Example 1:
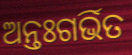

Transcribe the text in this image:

ଅନ୍ତଃଗର୍ଭିତ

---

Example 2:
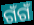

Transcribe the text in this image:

ଗଁଗଁ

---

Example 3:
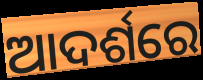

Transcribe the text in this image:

ଆଦର୍ଶରେ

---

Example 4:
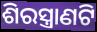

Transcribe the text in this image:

ଶିରସ୍ତ୍ରାଣଟି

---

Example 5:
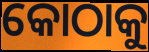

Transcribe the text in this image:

କୋଠାକୁ